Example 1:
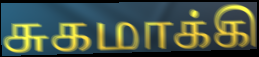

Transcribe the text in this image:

சுகமாக்கி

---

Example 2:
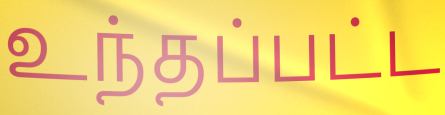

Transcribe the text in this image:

உந்தப்பட்ட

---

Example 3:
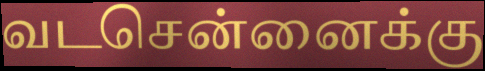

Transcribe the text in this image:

வடசென்னைக்கு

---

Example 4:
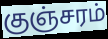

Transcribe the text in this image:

குஞ்சரம்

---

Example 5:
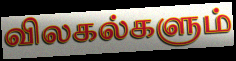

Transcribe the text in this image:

விலகல்களும்